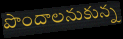
పొందాలనుకున్న